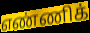
எண்ணிக்